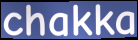
chakka